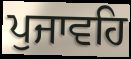
ਪੁਜਾਵਹਿ